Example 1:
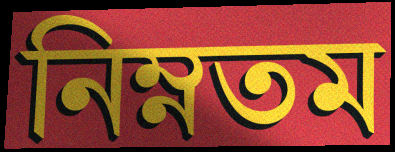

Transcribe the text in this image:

নিম্নতম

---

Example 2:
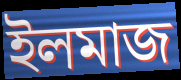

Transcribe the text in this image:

ইলমাজ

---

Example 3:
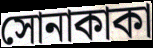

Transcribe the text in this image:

সোনাকাকা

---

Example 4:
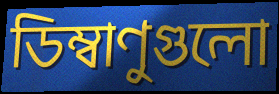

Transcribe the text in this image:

ডিম্বাণুগুলো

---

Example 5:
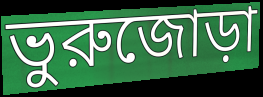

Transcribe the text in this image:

ভুরুজোড়া